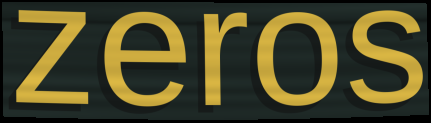
zeros